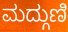
ಮದ್ಗುಣಿ